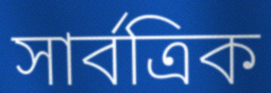
সার্বত্রিক